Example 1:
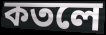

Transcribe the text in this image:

কতলে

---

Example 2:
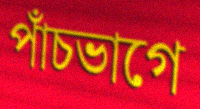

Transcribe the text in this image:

পাঁচভাগে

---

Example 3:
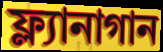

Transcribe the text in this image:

ফ্ল্যানাগান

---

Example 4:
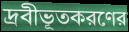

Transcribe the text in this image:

দ্রবীভূতকরণের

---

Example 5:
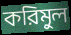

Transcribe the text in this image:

করিমুল